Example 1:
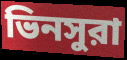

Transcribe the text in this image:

ভিনসুরা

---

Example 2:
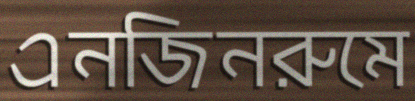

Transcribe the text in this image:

এনজিনরুমে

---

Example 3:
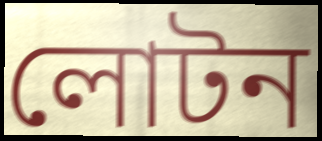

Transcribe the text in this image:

লোটন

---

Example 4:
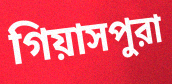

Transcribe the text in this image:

গিয়াসপুরা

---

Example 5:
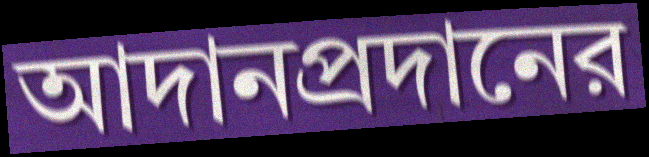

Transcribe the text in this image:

আদানপ্রদানের